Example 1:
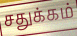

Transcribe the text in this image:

சதுக்கம்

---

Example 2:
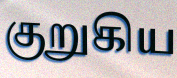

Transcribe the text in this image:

குறுகிய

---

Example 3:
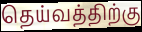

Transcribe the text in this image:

தெய்வத்திற்கு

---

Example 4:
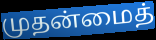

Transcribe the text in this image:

முதன்மைத்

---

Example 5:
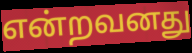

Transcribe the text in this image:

என்றவனது